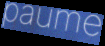
paume